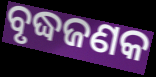
ବୃଦ୍ଧଜଣକ